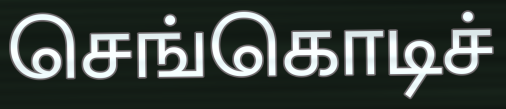
செங்கொடிச்